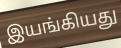
இயங்கியது